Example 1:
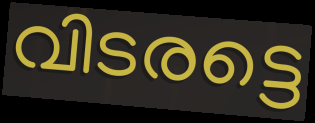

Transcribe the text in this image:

വിടരട്ടെ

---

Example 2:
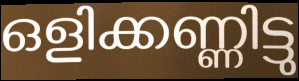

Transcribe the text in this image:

ഒളിക്കണ്ണിട്ടു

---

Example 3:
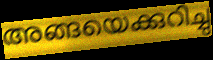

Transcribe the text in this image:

അങ്ങയെക്കുറിച്ചു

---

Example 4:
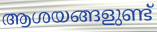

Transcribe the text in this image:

ആശയങ്ങളുണ്ട്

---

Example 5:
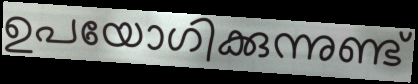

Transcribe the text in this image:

ഉപയോഗിക്കുന്നുണ്ട്